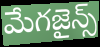
మేగజైన్స్